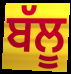
ਬੱਲੂ